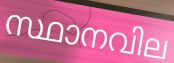
സ്ഥാനവില